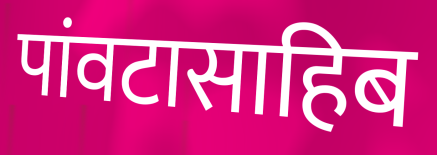
पांवटासाहिब